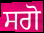
ਸਗੋ